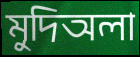
মুদিঅলা